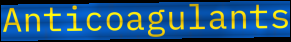
Anticoagulants